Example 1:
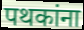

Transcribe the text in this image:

पथकांना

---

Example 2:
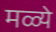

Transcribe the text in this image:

मळ्ये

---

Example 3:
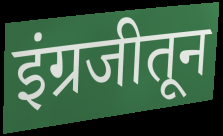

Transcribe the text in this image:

इंग्रजीतून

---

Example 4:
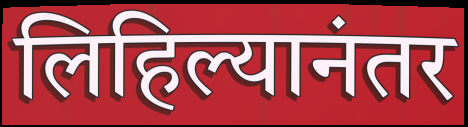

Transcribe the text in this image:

लिहिल्यानंतर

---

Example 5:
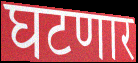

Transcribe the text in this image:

घटणार